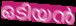
ഒടിയൻ